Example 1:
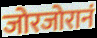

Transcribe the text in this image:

जोरजोरानं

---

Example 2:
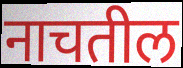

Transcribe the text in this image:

नाचतील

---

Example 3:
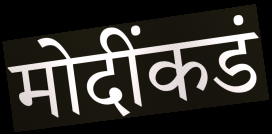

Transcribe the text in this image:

मोदींकडं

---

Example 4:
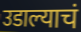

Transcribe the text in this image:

उडाल्याचं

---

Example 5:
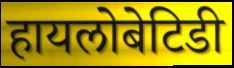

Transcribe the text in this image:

हायलोबेटिडी